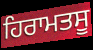
ਹਿਰਾਮਤਸੂ